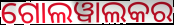
ଗୋଲୱାଲକର